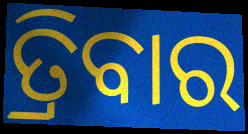
ତ୍ରିବାର